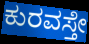
ಕುರವಸ್ತೇ